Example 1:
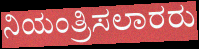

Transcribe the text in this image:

ನಿಯಂತ್ರಿಸಲಾರರು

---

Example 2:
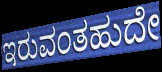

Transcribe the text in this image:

ಇರುವಂತಹುದೇ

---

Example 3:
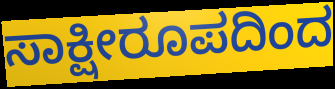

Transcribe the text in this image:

ಸಾಕ್ಷೀರೂಪದಿಂದ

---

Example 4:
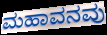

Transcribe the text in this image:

ಮಹಾವನವು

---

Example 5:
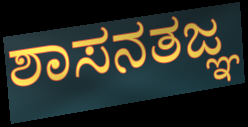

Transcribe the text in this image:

ಶಾಸನತಜ್ಞ